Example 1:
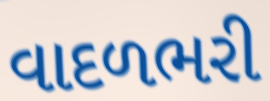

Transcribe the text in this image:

વાદળભરી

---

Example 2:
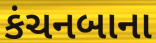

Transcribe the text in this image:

કંચનબાના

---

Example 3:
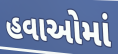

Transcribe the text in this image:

હવાઓમાં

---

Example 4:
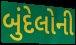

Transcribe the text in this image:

બુંદેલોની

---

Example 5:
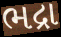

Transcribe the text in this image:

ભદ્રા